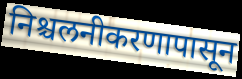
निश्चलनीकरणापासून